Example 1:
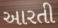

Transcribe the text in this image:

આરતી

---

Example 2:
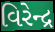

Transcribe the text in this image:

વિરેન્દ્ર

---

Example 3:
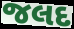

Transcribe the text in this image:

જલદ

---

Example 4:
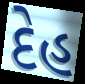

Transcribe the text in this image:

દેહ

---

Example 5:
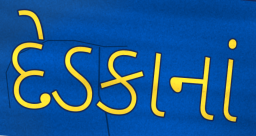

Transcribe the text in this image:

દેડકાનાં